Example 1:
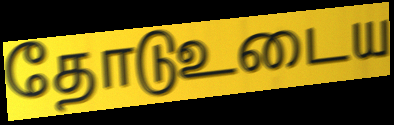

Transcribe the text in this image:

தோடுஉடைய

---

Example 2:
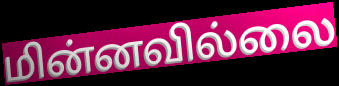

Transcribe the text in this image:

மின்னவில்லை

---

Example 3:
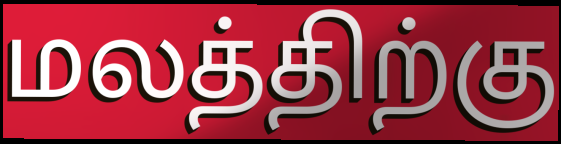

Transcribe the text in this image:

மலத்திற்கு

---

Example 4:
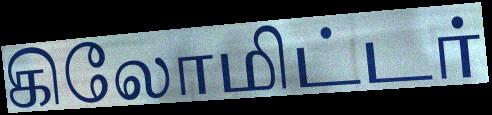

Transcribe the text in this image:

கிலோமிட்டர்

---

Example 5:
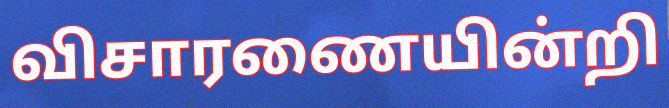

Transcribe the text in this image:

விசாரணையின்றி